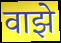
वाझे